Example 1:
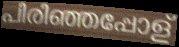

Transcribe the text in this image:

പിരിഞ്ഞപ്പോള്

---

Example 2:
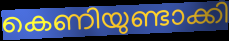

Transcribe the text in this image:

കെണിയുണ്ടാക്കി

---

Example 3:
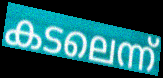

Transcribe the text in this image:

കടലെന്ന്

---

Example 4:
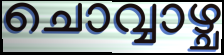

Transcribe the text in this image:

ചൊവ്വാഴ്ച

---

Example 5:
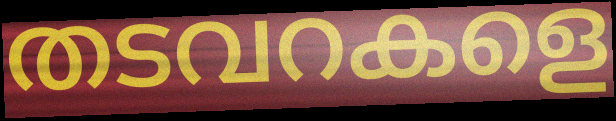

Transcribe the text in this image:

തടവറകളെ